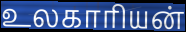
உலகாரியன்